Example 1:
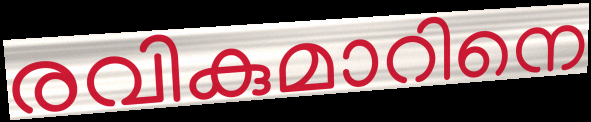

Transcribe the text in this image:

രവികുമാറിനെ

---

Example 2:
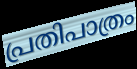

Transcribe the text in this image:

പ്രതിപാത്രം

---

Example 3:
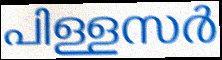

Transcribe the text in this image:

പിള്ളസർ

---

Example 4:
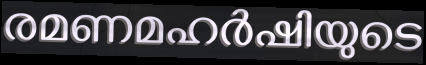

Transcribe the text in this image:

രമണമഹർഷിയുടെ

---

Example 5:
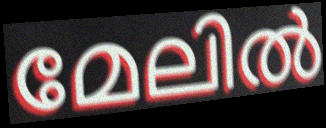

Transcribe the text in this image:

മേലിൽ